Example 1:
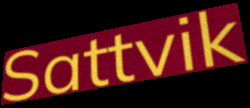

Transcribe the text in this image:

Sattvik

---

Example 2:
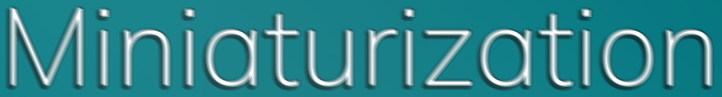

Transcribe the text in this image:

Miniaturization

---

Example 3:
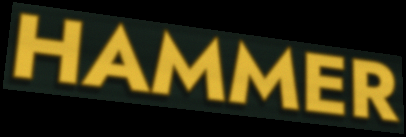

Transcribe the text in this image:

HAMMER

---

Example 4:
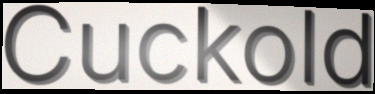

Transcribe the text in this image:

Cuckold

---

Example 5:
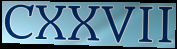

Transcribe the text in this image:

CXXVII